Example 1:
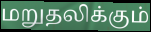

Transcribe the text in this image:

மறுதலிக்கும்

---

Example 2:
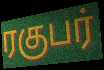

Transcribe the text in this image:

ரகுபர்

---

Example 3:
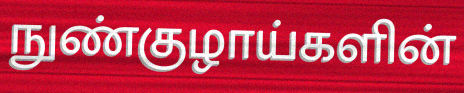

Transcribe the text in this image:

நுண்குழாய்களின்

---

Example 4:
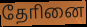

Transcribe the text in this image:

தேரினை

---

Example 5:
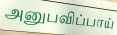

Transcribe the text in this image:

அனுபவிப்பாய்